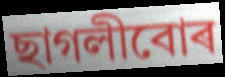
ছাগলীবোৰ